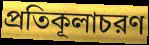
প্রতিকূলাচরণ